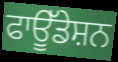
ਫਾਊੱਡੇਸ਼ਨ